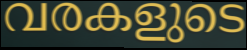
വരകളുടെ